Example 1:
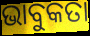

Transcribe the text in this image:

ଭାବୁକତା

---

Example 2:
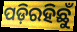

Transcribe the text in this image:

ପଡ଼ିରହିଛୁଁ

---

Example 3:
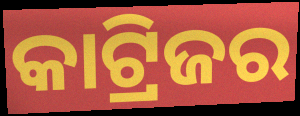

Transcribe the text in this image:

କାଟ୍ରିଜର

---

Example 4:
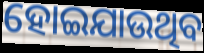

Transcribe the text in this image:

ହୋଇଯାଉଥିବ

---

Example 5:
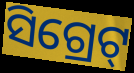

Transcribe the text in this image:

ସିଗ୍ରେଟ୍